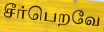
சீர்பெறவே